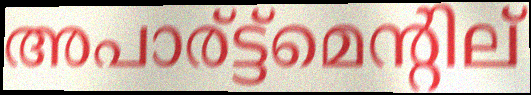
അപാര്ട്ട്മെന്റില്